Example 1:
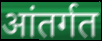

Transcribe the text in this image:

आंतर्गत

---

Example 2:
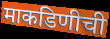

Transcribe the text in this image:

माकडिणीची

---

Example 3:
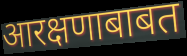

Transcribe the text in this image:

आरक्षणाबाबत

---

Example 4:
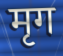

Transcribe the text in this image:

मृग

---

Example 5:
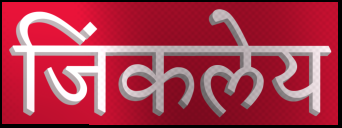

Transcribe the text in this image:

जिंकलेय